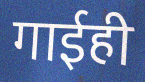
गाईही